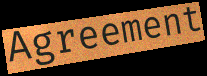
Agreement